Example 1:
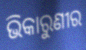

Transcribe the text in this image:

ଭିକାରୁଣୀର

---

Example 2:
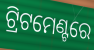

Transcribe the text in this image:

ଟ୍ରିଟମେଣ୍ଟରେ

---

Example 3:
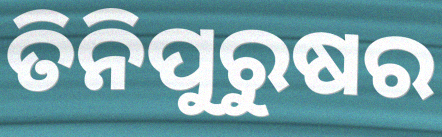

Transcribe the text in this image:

ତିନିପୁରୁଷର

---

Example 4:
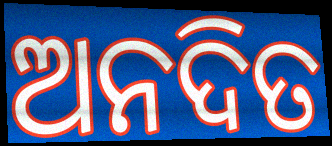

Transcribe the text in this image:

ଅନଦିତ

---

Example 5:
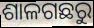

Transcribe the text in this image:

ଶାଳଗଛରୁ